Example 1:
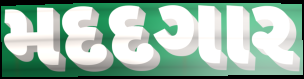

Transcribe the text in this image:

મદદગાર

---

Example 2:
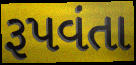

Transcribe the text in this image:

રૂપવંતા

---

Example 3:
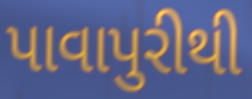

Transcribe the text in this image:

પાવાપુરીથી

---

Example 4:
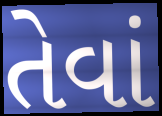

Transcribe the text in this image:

તેવાં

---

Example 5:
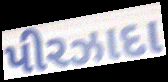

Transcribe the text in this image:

પીરઝાદા